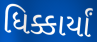
ધિક્કાર્યાં